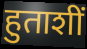
हुताशीं